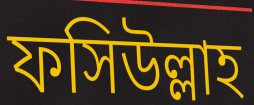
ফসিউল্লাহ